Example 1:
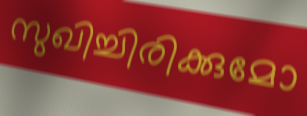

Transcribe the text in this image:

സുഖിച്ചിരിക്കുമോ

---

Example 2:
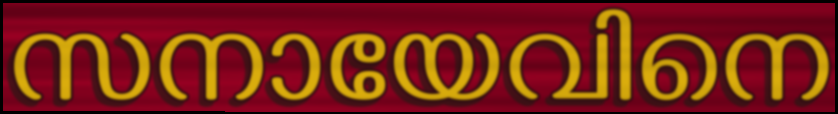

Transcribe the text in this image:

സനായേവിനെ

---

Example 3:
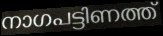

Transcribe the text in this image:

നാഗപട്ടിണത്ത്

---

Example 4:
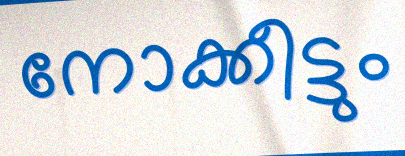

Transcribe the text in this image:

നോക്കീട്ടും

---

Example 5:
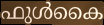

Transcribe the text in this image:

ഫുൾകൈ